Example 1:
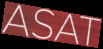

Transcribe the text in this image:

ASAT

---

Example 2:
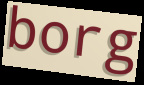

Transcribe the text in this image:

borg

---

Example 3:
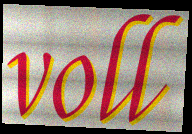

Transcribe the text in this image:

voll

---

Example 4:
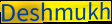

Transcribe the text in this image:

Deshmukh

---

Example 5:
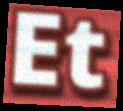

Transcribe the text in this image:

Et